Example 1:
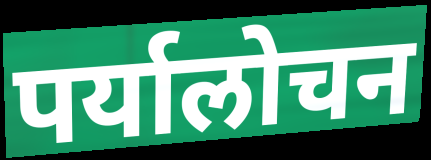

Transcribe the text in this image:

पर्यालोचन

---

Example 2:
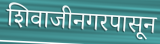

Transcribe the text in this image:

शिवाजीनगरपासून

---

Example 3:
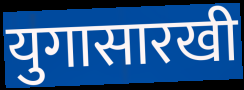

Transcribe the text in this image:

युगासारखी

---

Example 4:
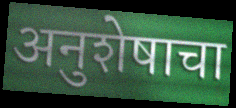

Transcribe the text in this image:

अनुशेषाचा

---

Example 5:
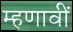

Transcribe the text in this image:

म्हणावीं